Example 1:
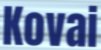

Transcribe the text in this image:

Kovai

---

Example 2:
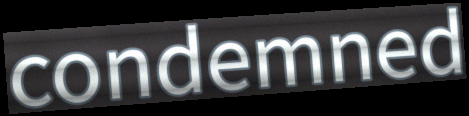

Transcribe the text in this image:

condemned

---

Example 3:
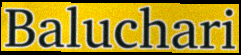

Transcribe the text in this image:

Baluchari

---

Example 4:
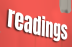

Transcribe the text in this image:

readings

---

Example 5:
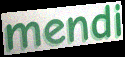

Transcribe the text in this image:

mendi